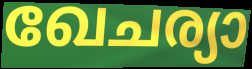
ഖേചര്യാ